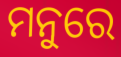
ମନୁରେ